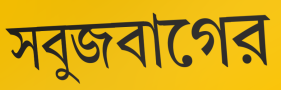
সবুজবাগের